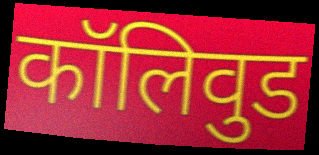
कॉलिवुड